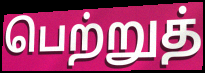
பெற்றுத்